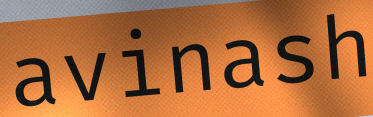
avinash